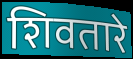
शिवतारे